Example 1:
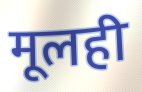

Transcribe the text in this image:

मूलही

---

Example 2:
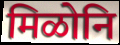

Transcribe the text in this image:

मिळोनि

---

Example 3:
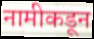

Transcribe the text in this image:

नामीकडून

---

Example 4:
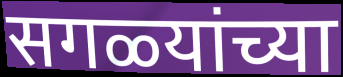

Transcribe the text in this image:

सगळ्यांच्या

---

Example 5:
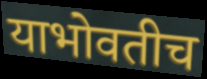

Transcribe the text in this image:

याभोवतीच